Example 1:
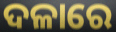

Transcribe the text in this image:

ଦଳାରେ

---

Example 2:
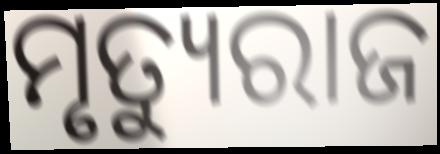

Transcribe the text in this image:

ମୃତ୍ୟୁରାଜ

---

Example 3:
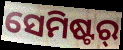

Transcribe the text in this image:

ସେମିଷ୍ଟର୍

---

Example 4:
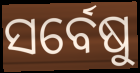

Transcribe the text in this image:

ସର୍ବେଷୁ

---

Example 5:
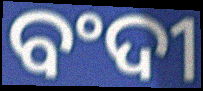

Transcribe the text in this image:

ବଂଦୀ